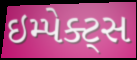
ઇમ્પેક્ટ્સ